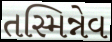
તસ્મિન્નેવ